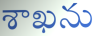
శాఖను